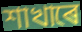
শাখাৰে